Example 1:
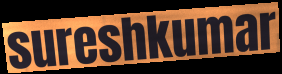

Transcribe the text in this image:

sureshkumar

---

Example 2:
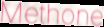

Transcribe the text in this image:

Methone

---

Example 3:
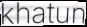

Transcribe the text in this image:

khatun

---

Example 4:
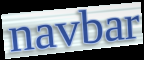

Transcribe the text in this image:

navbar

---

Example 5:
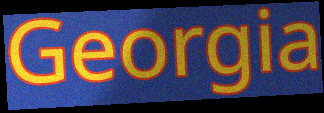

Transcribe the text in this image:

Georgia